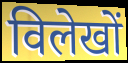
विलेखों